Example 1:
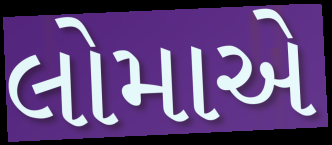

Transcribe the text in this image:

લોમાએ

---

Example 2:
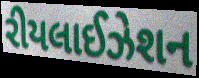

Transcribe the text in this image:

રીયલાઈઝેશન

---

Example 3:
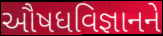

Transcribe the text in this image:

ઔષધવિજ્ઞાનને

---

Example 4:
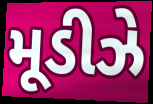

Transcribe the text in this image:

મૂડીઝે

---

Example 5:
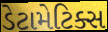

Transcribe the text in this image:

ડેટામેટિક્સ